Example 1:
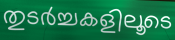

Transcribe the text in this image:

തുടർച്ചകളിലൂടെ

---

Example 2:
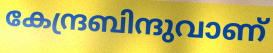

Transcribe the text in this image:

കേന്ദ്രബിന്ദുവാണ്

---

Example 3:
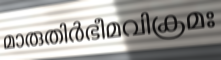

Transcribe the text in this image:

മാരുതിർഭീമവിക്രമഃ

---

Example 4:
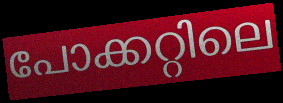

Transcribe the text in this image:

പോക്കറ്റിലെ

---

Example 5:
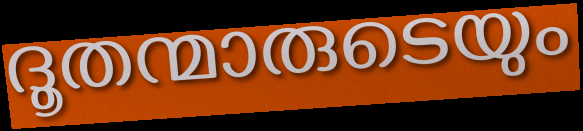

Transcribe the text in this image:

ദൂതന്മാരുടെയും